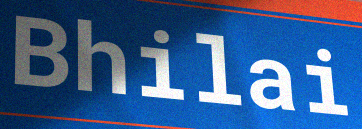
Bhilai